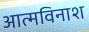
आत्मविनाश